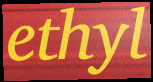
ethyl